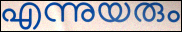
എന്നുയരും